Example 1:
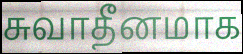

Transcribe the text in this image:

சுவாதீனமாக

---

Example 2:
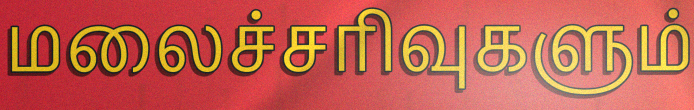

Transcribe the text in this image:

மலைச்சரிவுகளும்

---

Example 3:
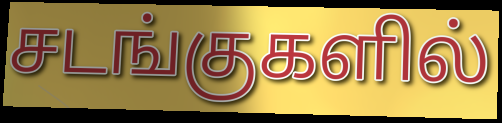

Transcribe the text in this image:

சடங்குகளில்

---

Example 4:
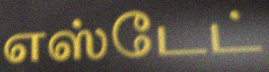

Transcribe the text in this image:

எஸ்டேட்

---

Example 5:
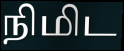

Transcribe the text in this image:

நிமிட